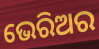
ଭେରିଅର